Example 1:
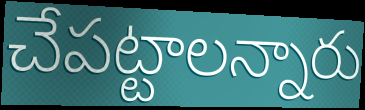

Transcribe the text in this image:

చేపట్టాలన్నారు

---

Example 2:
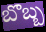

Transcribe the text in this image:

బొబ్బ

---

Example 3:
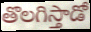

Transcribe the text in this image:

తొలగిస్తాడో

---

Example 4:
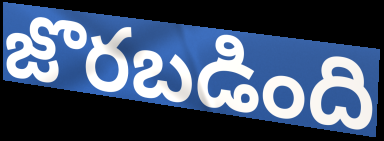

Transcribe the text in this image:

జొరబడింది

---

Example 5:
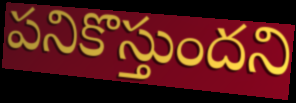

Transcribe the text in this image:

పనికొస్తుందని